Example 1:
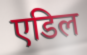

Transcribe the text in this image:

एडिल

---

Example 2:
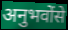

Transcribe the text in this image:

अनुभवोंसे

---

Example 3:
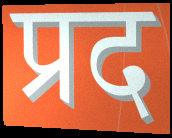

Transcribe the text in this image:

प्रद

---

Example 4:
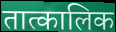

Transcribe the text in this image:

तात्कालिक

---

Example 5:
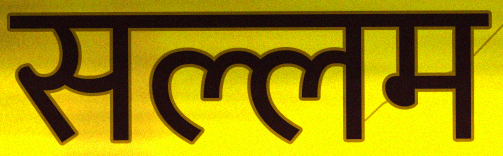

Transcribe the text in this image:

सल्‍लम